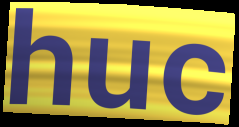
huc